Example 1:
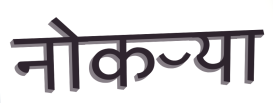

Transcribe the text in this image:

नोकऱ्या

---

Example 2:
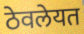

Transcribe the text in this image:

ठेवलेयत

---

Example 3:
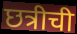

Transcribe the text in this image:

छत्रीची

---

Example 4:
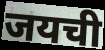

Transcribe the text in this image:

जयची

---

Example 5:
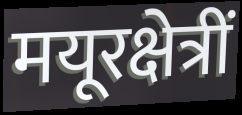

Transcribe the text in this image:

मयूरक्षेत्रीं